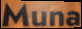
Muna